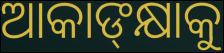
ଆକାଙ୍‍କ୍ଷାକୁ